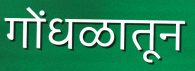
गोंधळातून